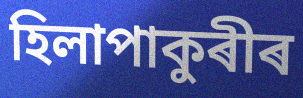
হিলাপাকুৰীৰ